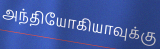
அந்தியோகியாவுக்கு